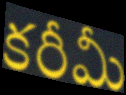
కరీమీ